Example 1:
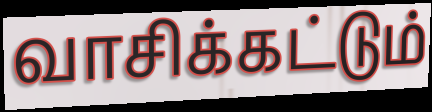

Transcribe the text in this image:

வாசிக்கட்டும்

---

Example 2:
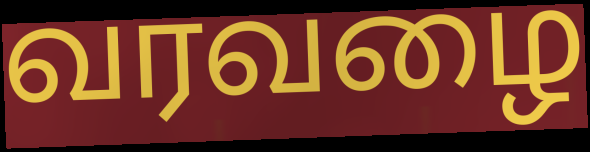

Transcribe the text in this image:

வரவழை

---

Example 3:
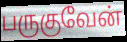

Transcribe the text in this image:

பருகுவேன்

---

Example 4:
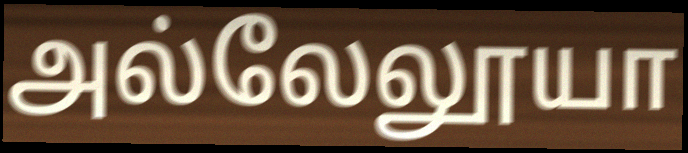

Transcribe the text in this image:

அல்லேலூயா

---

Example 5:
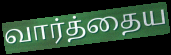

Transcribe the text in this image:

வார்த்தைய